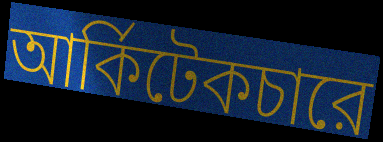
আর্কিটেকচারে